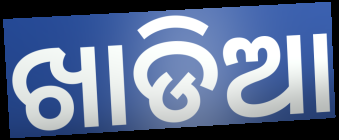
ଖାଡିଆ